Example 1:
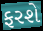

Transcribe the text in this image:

ફરશે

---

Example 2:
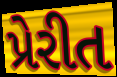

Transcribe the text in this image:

પ્રેરીત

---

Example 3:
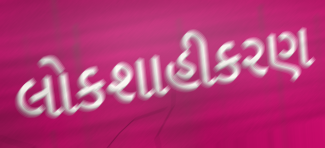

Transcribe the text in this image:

લોકશાહીકરણ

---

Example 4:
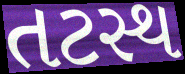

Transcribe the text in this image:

તટસ્થ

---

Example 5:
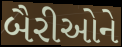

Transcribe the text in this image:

બૈરીઓને